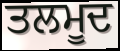
ਤਲਮੂਦ